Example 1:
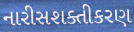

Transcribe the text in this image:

નારીસશક્તીકરણ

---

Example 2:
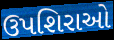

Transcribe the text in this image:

ઉપશિરાઓ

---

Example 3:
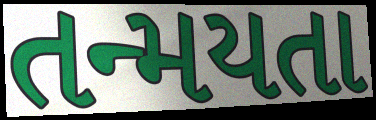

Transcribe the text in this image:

તન્મયતા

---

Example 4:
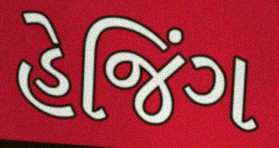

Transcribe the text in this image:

હેજિંગ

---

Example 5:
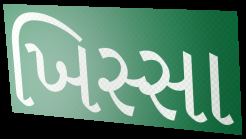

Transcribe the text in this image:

ખિસ્સા